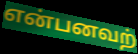
என்பனவற்